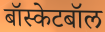
बॉस्केटबॉल